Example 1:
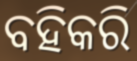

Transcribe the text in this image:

ବହିକରି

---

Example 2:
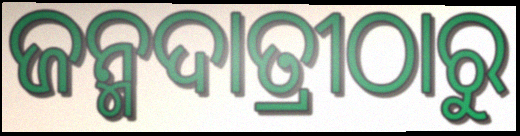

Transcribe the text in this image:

ଜନ୍ମଦାତ୍ରୀଠାରୁ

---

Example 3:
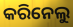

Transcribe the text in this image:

କରିନେଲୁ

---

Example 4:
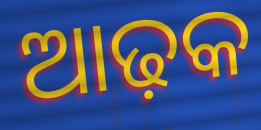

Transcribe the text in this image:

ଆଢ଼କ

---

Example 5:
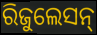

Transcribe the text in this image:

ରିଜୁଲେସନ୍